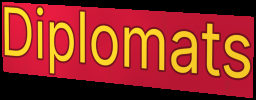
Diplomats